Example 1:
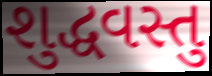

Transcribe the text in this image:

શુદ્ધવસ્તુ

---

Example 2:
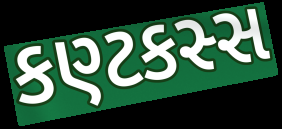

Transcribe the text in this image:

કણ્ટકસ્સ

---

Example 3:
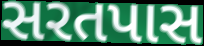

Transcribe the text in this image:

સરતપાસ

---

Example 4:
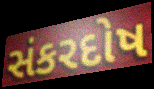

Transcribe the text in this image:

સંકરદોષ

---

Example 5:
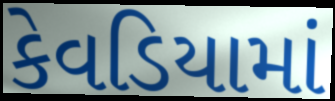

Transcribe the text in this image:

કેવડિયામાં